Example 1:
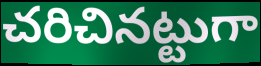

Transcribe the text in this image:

చరిచినట్టుగా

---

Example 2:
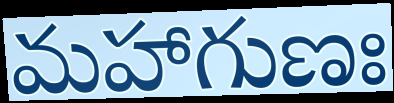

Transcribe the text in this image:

మహాగుణః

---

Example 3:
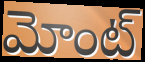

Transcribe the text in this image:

మోంట్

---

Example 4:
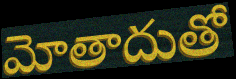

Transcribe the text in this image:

మోతాదుతో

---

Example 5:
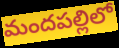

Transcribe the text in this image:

మందపల్లిలో